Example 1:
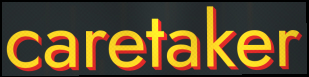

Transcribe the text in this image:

caretaker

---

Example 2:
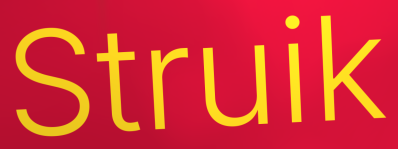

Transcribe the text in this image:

Struik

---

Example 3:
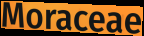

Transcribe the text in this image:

Moraceae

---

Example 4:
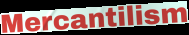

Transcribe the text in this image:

Mercantilism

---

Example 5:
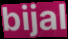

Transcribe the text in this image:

bijal